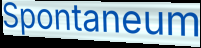
Spontaneum